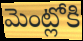
మెంట్లోకి